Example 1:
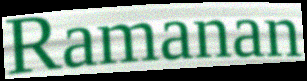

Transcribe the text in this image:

Ramanan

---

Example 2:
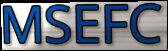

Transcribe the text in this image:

MSEFC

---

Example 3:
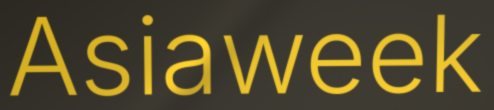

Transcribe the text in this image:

Asiaweek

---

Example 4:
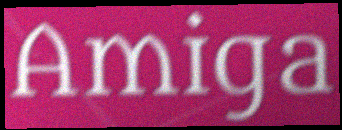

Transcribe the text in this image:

Amiga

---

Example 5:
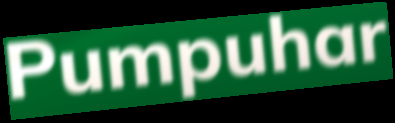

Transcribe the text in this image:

Pumpuhar